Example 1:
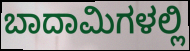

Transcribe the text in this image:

ಬಾದಾಮಿಗಳಲ್ಲಿ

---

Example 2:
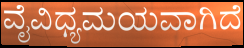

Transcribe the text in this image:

ವೈವಿಧ್ಯಮಯವಾಗಿದೆ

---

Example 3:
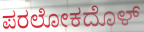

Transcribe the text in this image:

ಪರಲೋಕದೊಳ್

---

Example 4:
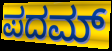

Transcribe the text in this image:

ಪದಮ್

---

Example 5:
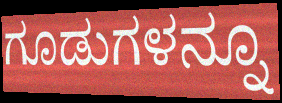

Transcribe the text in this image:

ಗೂಡುಗಳನ್ನೂ